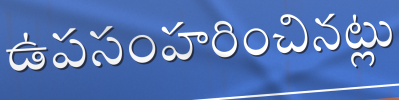
ఉపసంహరించినట్లు